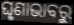
ଘୃଣାଭାବରୁ